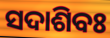
ସଦାଶିବଃ